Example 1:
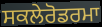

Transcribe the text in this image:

ਸਕਲੇਰੋਡਰਮਾ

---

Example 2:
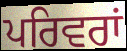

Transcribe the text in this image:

ਪਰਿਵਰਾਂ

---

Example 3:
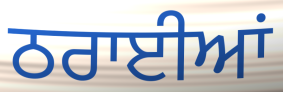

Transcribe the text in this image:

ਠਰਾਈਆਂ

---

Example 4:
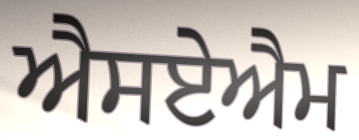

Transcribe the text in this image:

ਐਸਏਐਮ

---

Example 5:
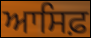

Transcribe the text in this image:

ਆਸਿਫ਼